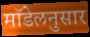
मॉडेलनुसार